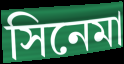
সিনেমা